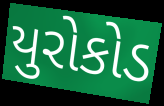
યુરોકોડ